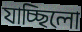
যাচ্ছিলো